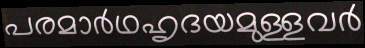
പരമാർഥഹൃദയമുള്ളവർ